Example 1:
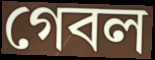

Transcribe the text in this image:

গেবল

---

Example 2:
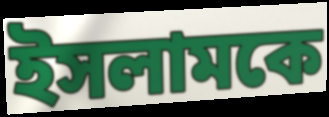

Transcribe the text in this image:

ইসলামকে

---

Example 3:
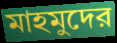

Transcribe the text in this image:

মাহমুদের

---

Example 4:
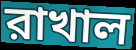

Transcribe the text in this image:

রাখাল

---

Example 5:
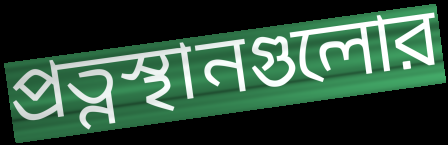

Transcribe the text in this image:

প্রত্নস্থানগুলোর